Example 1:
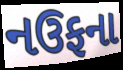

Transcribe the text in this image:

નઉફના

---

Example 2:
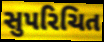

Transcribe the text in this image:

સુપરિચિત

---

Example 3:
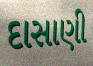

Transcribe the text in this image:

દાસાણી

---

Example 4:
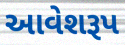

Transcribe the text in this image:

આવેશરૂપ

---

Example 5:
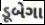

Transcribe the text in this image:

ડૂબેગા